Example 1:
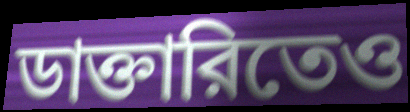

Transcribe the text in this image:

ডাক্তারিতেও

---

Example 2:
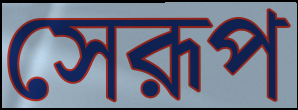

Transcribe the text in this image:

সেরূপ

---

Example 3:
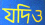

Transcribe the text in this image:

যদিও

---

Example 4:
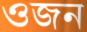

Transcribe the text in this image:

ওজন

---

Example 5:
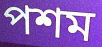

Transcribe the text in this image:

পশম